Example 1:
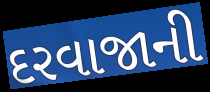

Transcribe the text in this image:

દરવાજાની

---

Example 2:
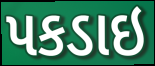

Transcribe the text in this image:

પકડાઇ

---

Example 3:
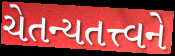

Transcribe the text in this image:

ચેતન્યતત્ત્વને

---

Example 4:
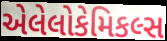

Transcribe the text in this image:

એલેલોકેમિકલ્સ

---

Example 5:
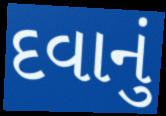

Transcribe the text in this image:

દવાનું